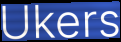
Ukers